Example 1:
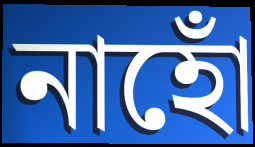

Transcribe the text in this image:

নাহোঁ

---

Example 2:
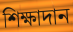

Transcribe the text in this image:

শিক্ষাদান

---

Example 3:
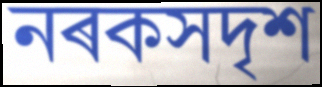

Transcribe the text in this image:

নৰকসদৃশ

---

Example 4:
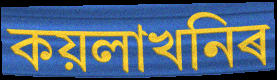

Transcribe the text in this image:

কয়লাখনিৰ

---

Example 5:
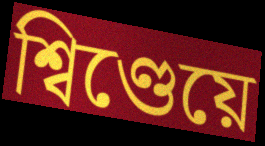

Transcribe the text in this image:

শ্বিণ্ডেয়ে